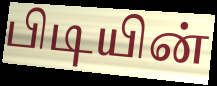
பிடியின்